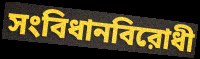
সংবিধানবিরোধী